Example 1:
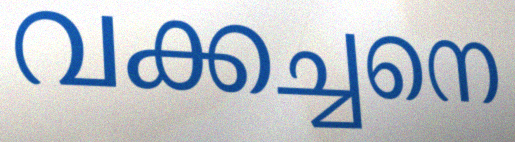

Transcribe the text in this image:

വക്കച്ചനെ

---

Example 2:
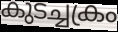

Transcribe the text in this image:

കുടച്ചക്രം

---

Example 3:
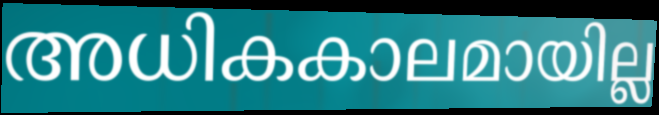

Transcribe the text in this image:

അധികകാലമായില്ല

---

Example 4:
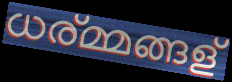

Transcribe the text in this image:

ധര്മ്മങ്ങള്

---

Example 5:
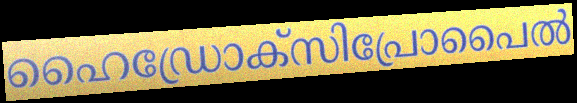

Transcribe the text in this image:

ഹൈഡ്രോക്സിപ്രോപൈൽ